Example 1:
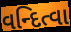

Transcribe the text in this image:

વન્દિત્વા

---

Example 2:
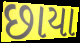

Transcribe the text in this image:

છાયા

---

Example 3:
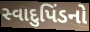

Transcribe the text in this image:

સ્વાદુપિંડનો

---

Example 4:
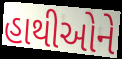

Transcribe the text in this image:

હાથીઓને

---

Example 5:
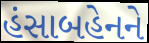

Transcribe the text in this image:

હંસાબહેનને